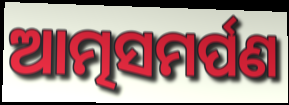
ଆତ୍ମସମର୍ପଣ